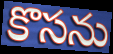
కొసను